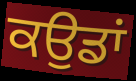
ਕਉਡਾਂ